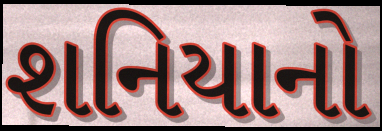
શનિયાનો